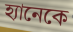
হ্যানেকে